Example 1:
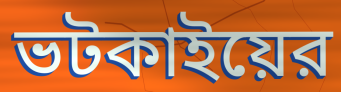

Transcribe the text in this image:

ভটকাইয়ের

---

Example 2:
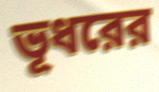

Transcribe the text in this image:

ভূধরের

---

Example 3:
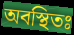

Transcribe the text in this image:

অবস্থিতঃ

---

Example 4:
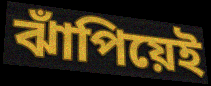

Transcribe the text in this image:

ঝাঁপিয়েই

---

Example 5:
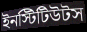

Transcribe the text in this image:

ইনস্টিটিউটস